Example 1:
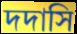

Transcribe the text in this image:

দদাসি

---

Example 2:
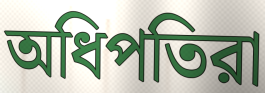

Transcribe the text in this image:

অধিপতিরা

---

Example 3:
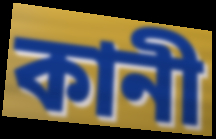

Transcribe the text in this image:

কানী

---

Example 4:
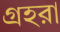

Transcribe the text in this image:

গ্রহরা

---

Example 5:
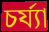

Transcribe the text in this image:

চর্য্যা